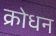
क्रोधन